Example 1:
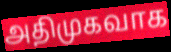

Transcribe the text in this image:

அதிமுகவாக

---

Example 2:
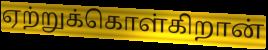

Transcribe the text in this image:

ஏற்றுக்கொள்கிறான்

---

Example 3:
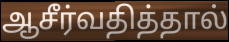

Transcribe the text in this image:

ஆசீர்வதித்தால்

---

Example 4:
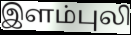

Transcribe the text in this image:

இளம்புலி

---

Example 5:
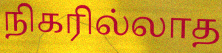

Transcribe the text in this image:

நிகரில்லாத